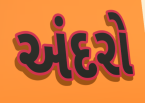
અંદરો